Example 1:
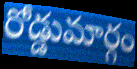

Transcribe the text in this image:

రోడ్డుమార్గం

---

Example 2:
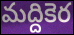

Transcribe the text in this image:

మద్దికెర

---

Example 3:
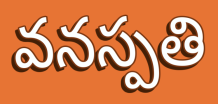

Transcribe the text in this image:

వనస్పతి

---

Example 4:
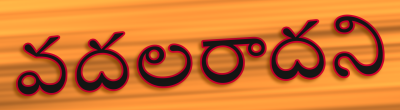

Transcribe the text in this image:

వదలరాదని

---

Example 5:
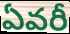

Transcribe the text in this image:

ఏవరీ